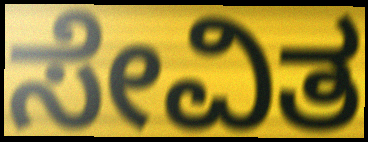
ಸೇವಿತ